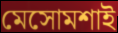
মেসোমশাই